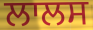
ਲਾਲਸ